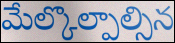
మేల్కొల్పాల్సిన